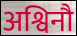
अश्विनौ